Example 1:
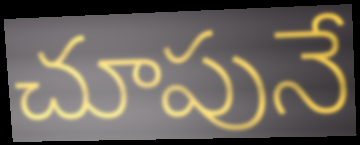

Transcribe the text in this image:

చూపునే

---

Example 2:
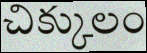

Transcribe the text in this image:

చిక్కులం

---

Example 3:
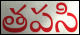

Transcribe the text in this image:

తపసి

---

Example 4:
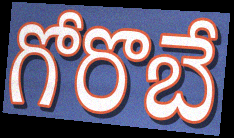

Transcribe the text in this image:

గోరొబే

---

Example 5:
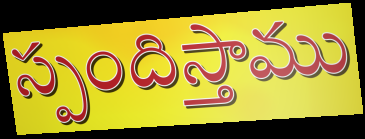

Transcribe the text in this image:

స్పందిస్తాము